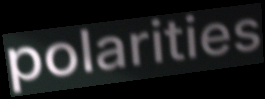
polarities